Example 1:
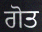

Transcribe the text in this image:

ਗੋਤ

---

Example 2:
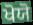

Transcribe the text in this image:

ਖੋਯੋ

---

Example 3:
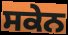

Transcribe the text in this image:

ਸਕੇਨ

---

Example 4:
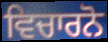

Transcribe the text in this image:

ਵਿਚਾਰਨੋ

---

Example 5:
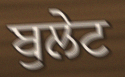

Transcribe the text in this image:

ਬੁਲੇਟ